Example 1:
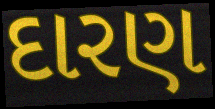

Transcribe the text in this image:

દારણ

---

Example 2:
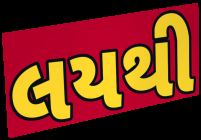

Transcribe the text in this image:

લયથી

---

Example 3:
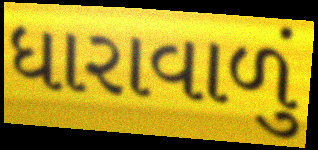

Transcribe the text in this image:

ધારાવાળું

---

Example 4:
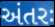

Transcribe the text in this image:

અંતરઃ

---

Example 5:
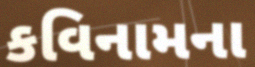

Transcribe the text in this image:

કવિનામના